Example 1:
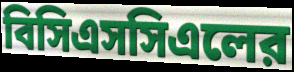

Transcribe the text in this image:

বিসিএসসিএলের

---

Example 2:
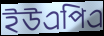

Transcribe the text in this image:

ইউএপিএ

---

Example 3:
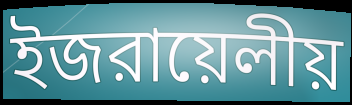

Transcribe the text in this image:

ইজরায়েলীয়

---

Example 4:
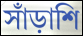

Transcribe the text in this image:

সাঁড়াশি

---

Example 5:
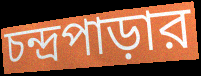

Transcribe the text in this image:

চন্দ্রপাড়ার